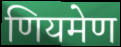
णियमेण